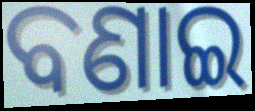
ବଣାଇ